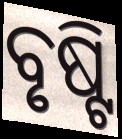
ବୃଷ୍ଟି